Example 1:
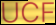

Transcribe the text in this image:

UCF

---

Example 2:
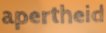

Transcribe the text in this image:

apertheid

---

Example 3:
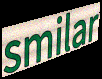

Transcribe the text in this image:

smilar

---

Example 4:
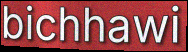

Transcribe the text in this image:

bichhawi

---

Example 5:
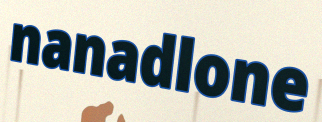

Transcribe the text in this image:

nanadlone